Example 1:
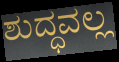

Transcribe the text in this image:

ಶುದ್ಧವಲ್ಲ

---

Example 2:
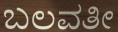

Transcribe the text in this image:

ಬಲವತೀ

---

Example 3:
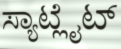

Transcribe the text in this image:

ಸ್ಯಾಟ್ಲೈಟ್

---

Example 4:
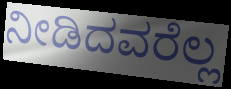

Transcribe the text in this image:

ನೀಡಿದವರೆಲ್ಲ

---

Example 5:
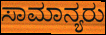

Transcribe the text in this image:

ಸಾಮಾನ್ಯರು